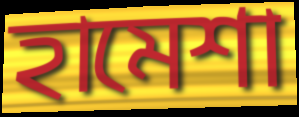
হামেশা